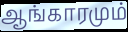
ஆங்காரமும்